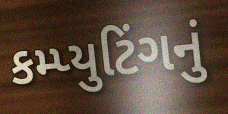
કમ્પ્યુટિંગનું